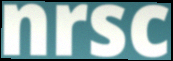
nrsc